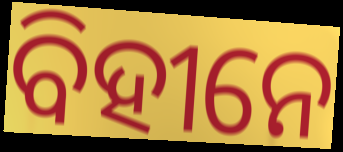
ବିହୀନେ